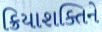
ક્રિયાશક્તિને